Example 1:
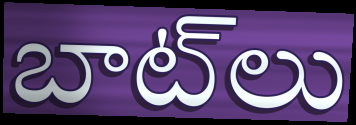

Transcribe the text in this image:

బాట్‌లు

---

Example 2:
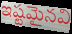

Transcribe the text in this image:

ఇష్టమైనవి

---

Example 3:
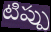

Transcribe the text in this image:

టిప్పు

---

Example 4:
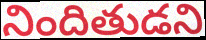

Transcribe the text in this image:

నిందితుడని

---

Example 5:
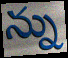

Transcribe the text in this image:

న్ను